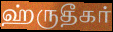
ஹ்ருதீகர்